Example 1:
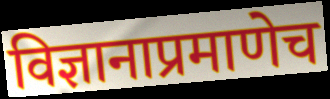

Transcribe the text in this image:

विज्ञानाप्रमाणेच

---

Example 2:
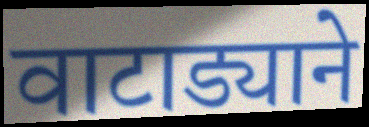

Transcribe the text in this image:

वाटाड्याने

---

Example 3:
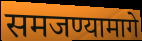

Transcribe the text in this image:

समजण्यामागे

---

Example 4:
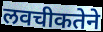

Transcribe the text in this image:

लवचीकतेने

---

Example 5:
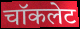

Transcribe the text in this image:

चॉकलेट